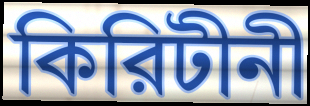
কিরিটীনী